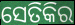
ସେତିକିର